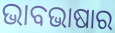
ଭାବଭାଷାର